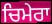
ਚਿਮੇਰਾ